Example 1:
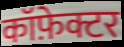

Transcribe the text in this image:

कॉफ़ेक्टर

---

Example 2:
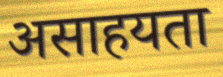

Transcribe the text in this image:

असाहयता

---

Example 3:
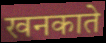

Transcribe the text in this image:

खनकाते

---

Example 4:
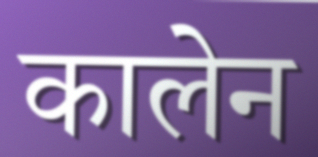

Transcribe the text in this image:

कालेन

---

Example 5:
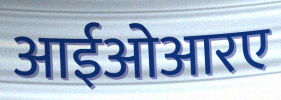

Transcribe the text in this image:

आईओआरए